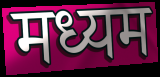
मध्यम